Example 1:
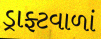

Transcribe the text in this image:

ડ્રાફ્ટવાળાં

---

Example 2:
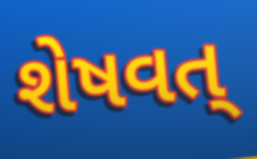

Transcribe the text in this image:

શેષવત્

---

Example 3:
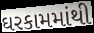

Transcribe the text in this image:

ઘરકામમાંથી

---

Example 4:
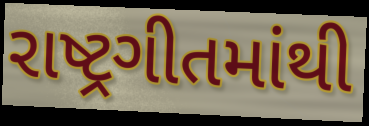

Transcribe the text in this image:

રાષ્ટ્રગીતમાંથી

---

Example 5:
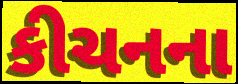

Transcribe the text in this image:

કીચનના